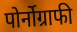
पोर्नोग्राफी